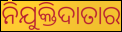
ନିଯୁକ୍ତିଦାତାର